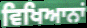
ਵਿਖਿਆਨਾਂ